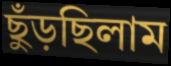
ছুঁড়ছিলাম